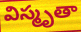
విస్మృతా